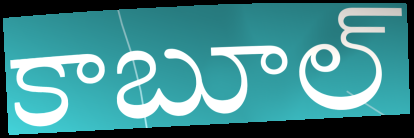
కాబూల్